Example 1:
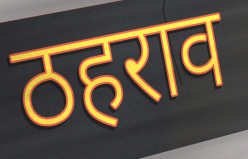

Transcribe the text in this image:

ठहराव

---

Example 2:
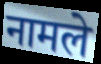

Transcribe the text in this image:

नामले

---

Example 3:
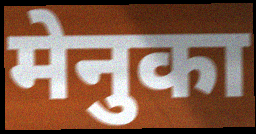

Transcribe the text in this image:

मेनुका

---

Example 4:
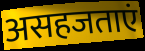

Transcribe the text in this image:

असहजताएं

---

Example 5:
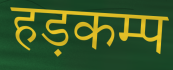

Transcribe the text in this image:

हड़कम्प